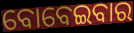
ବୋବେଇବାର